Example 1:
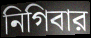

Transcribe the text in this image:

নিগিবার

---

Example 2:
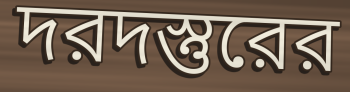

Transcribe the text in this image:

দরদস্তুরের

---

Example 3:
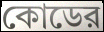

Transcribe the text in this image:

কোডের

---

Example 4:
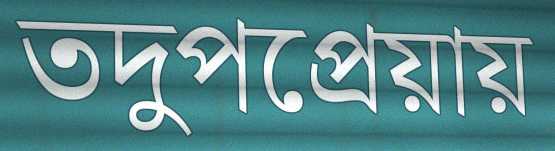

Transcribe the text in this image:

তদুপপ্রেয়ায়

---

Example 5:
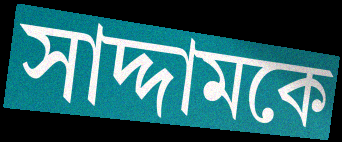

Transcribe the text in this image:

সাদ্দামকে